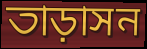
তাড়াসন